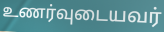
உணர்வுடையவர்